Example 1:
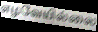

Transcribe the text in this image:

எழவேயில்லை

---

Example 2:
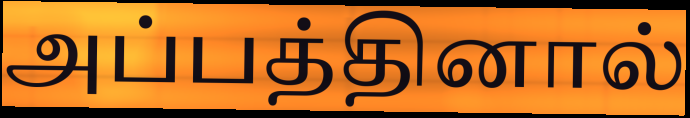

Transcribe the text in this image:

அப்பத்தினால்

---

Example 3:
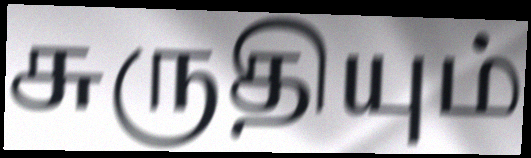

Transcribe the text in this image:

சுருதியும்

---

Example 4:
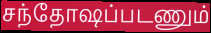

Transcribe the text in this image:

சந்தோஷப்படணும்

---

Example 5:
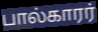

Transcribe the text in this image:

பால்காரர்